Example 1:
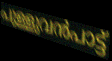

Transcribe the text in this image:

പുള്ളുവൻപാട്ട്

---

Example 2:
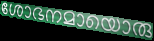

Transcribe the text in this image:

ശോഭനമായൊരു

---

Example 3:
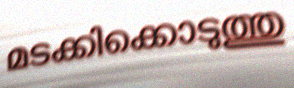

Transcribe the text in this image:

മടക്കിക്കൊടുത്തു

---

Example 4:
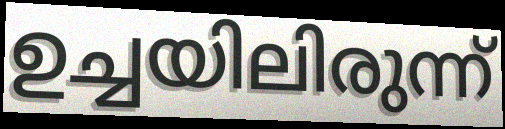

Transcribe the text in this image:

ഉച്ചയിലിരുന്ന്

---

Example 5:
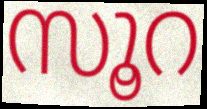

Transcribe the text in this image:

സൂറ